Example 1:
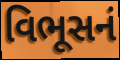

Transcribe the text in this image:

વિભૂસનં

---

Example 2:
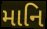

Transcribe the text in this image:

માનિ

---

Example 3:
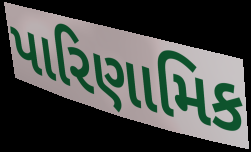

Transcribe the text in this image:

પારિણામિક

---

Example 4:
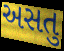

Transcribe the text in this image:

અસતુ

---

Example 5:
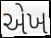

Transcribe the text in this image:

એખ